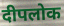
दीपलोक